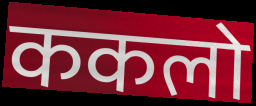
ककलो